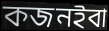
কজনইবা